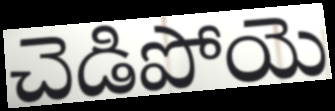
చెడిపోయె